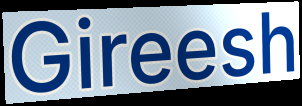
Gireesh